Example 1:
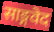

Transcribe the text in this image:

साङ्गवेद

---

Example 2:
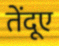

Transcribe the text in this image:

तेंदूए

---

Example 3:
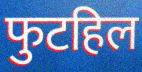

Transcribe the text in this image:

फुटहिल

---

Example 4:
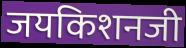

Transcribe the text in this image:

जयकिशनजी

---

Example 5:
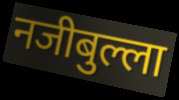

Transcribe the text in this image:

नजीबुल्ला